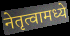
नेतृत्वामध्ये